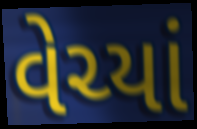
વેચ્યાં